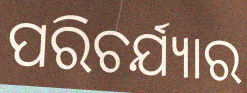
ପରିଚର୍ଯ୍ୟାର